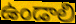
ఉండాలి